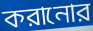
করানোর